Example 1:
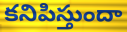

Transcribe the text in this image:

కనిపిస్తుందా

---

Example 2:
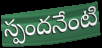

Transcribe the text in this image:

స్పందనేంటి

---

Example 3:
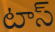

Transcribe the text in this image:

టాస్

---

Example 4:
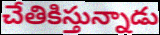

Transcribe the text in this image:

చేతికిస్తున్నాడు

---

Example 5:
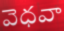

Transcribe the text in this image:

వెధవా